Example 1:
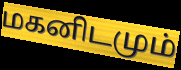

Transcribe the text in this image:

மகனிடமும்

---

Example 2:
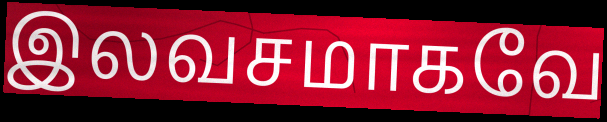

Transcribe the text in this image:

இலவசமாகவே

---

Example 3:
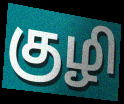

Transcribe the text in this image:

குழி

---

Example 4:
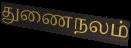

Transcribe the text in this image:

துணைநலம்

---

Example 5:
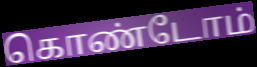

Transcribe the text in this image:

கொண்டோம்